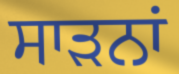
ਸਾੜਨਾਂ